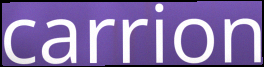
carrion